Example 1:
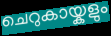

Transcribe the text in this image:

ചെറുകായ്കളും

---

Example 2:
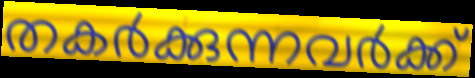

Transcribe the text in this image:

തകർക്കുന്നവർക്ക്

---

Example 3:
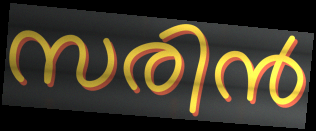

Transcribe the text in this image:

സരിൻ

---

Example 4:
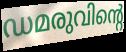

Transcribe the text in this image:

ഡമരുവിന്റെ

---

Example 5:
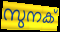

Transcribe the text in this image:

സുനക്